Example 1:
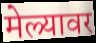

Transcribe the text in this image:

मेल्यावर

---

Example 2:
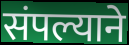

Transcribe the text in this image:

संपल्याने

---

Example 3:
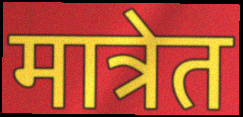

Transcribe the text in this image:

मात्रेत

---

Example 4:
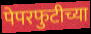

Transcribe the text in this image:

पेपरफुटीच्या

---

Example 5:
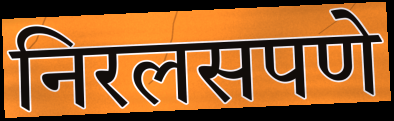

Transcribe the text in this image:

निरलसपणे